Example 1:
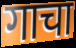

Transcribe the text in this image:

गाचा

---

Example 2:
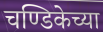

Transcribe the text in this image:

चण्डिकेच्या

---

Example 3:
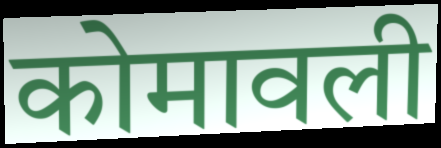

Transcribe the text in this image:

कोमावली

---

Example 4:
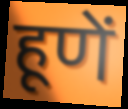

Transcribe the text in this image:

हूणें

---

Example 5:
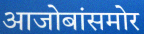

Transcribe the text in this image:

आजोबांसमोर